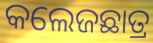
କଲେଜଛାତ୍ର